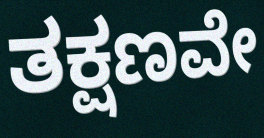
ತಕ್ಷಣವೇ